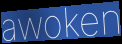
awoken